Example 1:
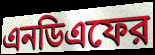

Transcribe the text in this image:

এনডিএফের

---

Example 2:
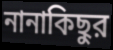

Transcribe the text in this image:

নানাকিছুর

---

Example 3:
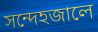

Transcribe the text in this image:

সন্দেহজালে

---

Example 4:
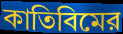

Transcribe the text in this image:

কাতিবিমের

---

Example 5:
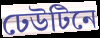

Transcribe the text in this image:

ঢেউটিনে